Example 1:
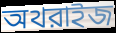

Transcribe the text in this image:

অথরাইজ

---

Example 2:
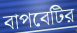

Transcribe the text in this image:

বাপবেটির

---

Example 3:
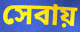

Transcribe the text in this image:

সেবায়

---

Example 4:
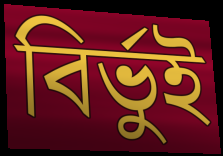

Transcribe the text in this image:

বির্ভুই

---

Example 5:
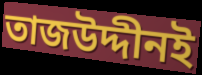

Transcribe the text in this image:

তাজউদ্দীনই